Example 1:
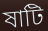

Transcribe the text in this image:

ষাটি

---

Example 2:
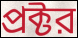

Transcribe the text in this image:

প্রক্টর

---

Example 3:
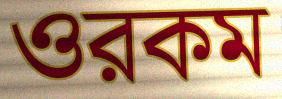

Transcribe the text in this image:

ওরকম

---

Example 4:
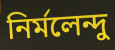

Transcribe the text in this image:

নির্মলেন্দু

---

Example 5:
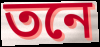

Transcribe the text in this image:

তনে